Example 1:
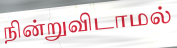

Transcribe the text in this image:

நின்றுவிடாமல்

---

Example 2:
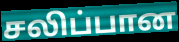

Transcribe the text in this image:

சலிப்பான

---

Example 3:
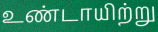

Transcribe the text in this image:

உண்டாயிற்று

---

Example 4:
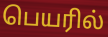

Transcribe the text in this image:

பெயரில்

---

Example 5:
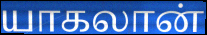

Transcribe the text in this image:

யாகலான்